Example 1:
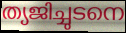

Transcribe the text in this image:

ത്യജിച്ചുടനെ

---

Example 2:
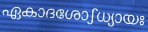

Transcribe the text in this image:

ഏകാദശോഽധ്യായഃ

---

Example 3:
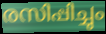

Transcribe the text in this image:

രസിപ്പിച്ചും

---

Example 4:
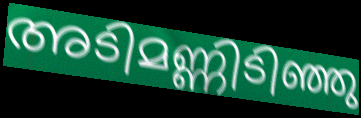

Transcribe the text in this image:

അടിമണ്ണിടിഞ്ഞു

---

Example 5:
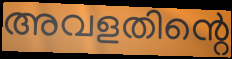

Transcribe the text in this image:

അവളതിന്റെ